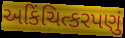
અકિંચિત્કરપણું